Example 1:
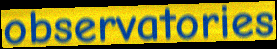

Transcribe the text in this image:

observatories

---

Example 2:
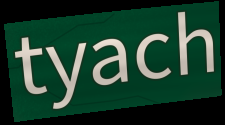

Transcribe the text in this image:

tyach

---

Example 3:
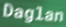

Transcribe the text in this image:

Daglan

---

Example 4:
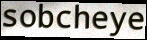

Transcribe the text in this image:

sobcheye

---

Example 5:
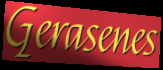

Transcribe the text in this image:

Gerasenes